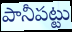
పానీపట్టు